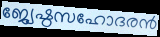
ജ്യേഷ്ഠസഹോദരൻ